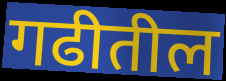
गढीतील